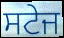
ਸਟੇਜ